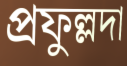
প্রফুল্লদা